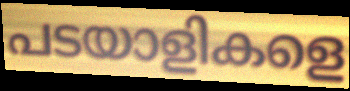
പടയാളികളെ